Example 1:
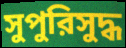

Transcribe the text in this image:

সুপুরিসুদ্ধ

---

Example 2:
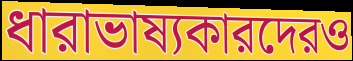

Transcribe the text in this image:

ধারাভাষ্যকারদেরও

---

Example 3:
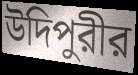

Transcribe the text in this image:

উদিপুরীর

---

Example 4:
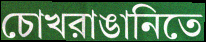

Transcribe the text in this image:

চোখরাঙানিতে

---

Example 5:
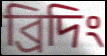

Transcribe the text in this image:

ব্রিদিং